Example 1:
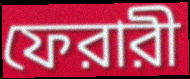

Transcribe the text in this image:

ফেরারী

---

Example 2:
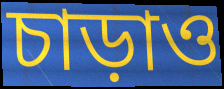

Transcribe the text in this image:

চাড়াও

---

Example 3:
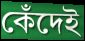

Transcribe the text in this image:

কেঁদেই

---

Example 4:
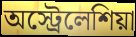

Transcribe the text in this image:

অস্ট্রেলেশিয়া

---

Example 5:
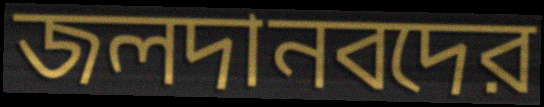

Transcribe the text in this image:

জলদানবদের